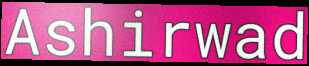
Ashirwad